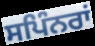
ਸਪਿੰਨਰਾਂ